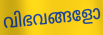
വിഭവങ്ങളോ